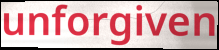
unforgiven